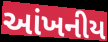
આંખનીય